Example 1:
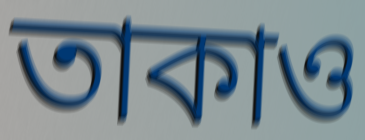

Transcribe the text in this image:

তাকাও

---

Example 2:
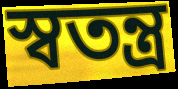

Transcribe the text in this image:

স্বতন্ত্র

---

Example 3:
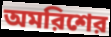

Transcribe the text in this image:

অমরিশের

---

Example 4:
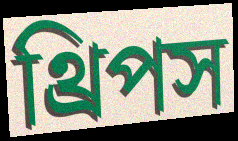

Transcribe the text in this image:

থ্রিপস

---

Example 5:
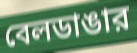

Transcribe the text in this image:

বেলডাঙার